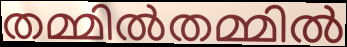
തമ്മിൽതമ്മിൽ